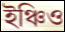
ইঞ্চিও